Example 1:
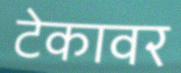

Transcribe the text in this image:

टेकावर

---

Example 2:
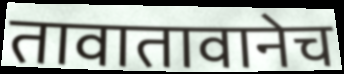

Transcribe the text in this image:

तावातावानेच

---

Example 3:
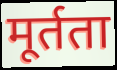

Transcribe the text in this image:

मूर्तता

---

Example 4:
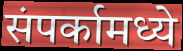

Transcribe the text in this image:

संपर्कामध्ये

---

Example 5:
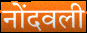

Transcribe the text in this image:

नोंदवली